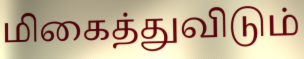
மிகைத்துவிடும்